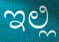
ಇಲ್ಲಿ